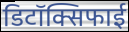
डिटॉक्सिफाई